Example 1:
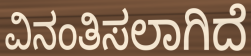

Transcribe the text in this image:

ವಿನಂತಿಸಲಾಗಿದೆ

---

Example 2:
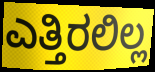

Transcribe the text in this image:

ಎತ್ತಿರಲಿಲ್ಲ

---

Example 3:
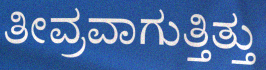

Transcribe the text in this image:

ತೀವ್ರವಾಗುತ್ತಿತ್ತು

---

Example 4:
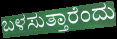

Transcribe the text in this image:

ಬಳಸುತ್ತಾರೆಂದು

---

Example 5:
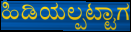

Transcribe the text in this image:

ಹಿಡಿಯಲ್ಪಟ್ಟಾಗ